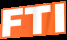
FTI